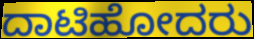
ದಾಟಿಹೋದರು